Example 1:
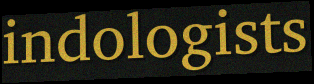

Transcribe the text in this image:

indologists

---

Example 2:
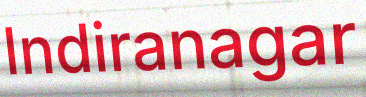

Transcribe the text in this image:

Indiranagar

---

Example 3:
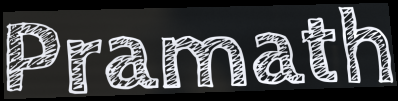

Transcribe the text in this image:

Pramath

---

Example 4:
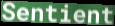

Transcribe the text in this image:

Sentient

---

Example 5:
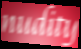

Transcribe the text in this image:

nudity